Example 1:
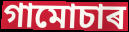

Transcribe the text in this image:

গামোচাৰ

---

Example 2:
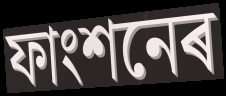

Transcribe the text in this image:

ফাংশনেৰ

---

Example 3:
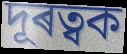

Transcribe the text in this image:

দূৰত্বক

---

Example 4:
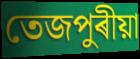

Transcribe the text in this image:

তেজপুৰীয়া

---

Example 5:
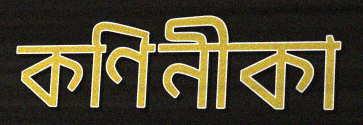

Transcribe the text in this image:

কণিনীকা